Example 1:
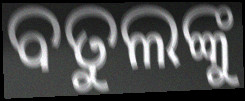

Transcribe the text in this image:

ବତୁଲଙ୍କୁ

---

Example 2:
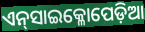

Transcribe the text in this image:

ଏନ୍‌ସାଇକ୍ଳୋପେଡ଼ିଆ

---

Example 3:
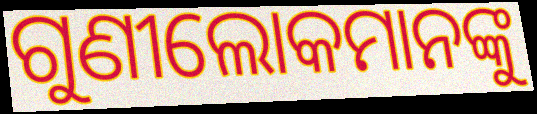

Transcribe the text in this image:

ଗୁଣୀଲୋକମାନଙ୍କୁ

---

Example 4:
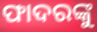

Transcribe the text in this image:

ଫାଦରଙ୍କୁ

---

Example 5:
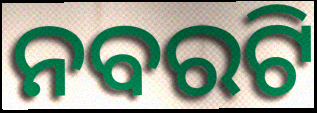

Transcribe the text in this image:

ନବରଟି